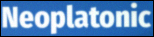
Neoplatonic